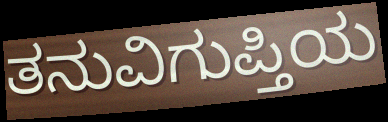
ತನುವಿಗುಪ್ತಿಯ